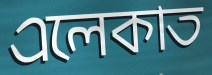
এলেকাত